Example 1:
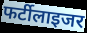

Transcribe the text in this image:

फर्टीलाइजर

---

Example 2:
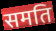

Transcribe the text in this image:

समति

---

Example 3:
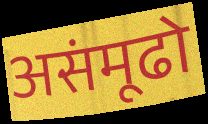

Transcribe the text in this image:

असंमूढो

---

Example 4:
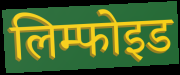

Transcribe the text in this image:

लिम्फोइड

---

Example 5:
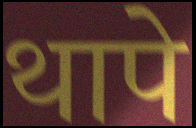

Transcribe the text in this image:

थापे